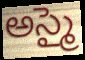
అస్మై